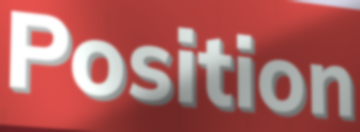
Position